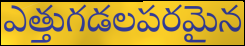
ఎత్తుగడలపరమైన